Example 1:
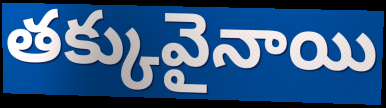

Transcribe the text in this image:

తక్కువైనాయి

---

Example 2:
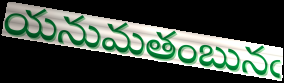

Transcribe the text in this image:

యనుమతంబునఁ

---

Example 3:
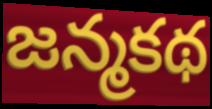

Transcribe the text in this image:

జన్మకథ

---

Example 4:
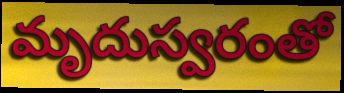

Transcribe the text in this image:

మృదుస్వరంతో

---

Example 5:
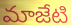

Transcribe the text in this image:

మాజేటి